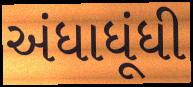
અંધાધૂંધી